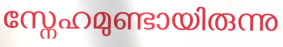
സ്നേഹമുണ്ടായിരുന്നു